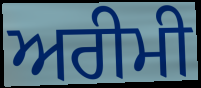
ਅਰੀਮੀ